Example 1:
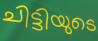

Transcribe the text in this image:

ചിട്ടിയുടെ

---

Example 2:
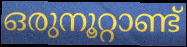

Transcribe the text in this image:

ഒരുനൂറ്റാണ്ട്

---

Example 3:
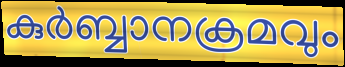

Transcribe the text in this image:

കുർബ്ബാനക്രമവും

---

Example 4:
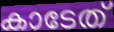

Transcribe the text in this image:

കാടേത്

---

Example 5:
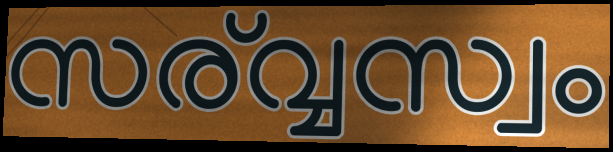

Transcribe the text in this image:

സര്വ്വസ്വം